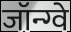
जॉन्ग्वे